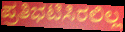
ಪ್ರತಿಭಟಿಸಿರಲಿಲ್ಲ